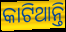
କାଟିଥାନ୍ତି